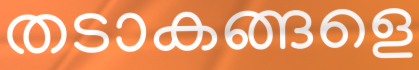
തടാകങ്ങളെ